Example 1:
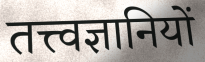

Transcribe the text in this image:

तत्त्वज्ञानियों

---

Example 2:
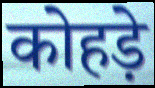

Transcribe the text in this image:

कोहड़े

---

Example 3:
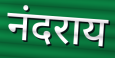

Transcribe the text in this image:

नंदराय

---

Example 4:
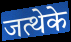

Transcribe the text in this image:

जत्थेके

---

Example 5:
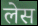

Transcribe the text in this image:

लेस